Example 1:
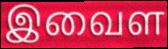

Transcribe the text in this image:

இவைள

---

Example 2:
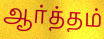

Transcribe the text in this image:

ஆர்த்தம்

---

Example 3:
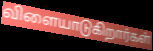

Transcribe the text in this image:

விளையாடுகிறார்கள்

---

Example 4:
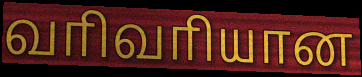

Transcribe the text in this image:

வரிவரியான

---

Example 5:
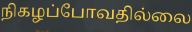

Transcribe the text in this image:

நிகழப்போவதில்லை